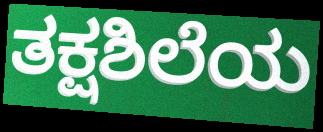
ತಕ್ಷಶಿಲೆಯ